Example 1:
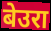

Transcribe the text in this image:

बेउरा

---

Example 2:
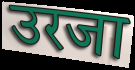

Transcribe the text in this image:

उरजा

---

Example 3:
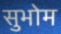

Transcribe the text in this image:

सुभोम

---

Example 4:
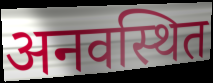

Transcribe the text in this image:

अनवस्थित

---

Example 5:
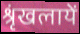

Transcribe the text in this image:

श्रृंखलायें